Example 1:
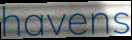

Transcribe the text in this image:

havens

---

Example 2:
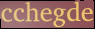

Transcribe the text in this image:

cchegde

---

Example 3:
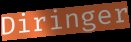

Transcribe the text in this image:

Diringer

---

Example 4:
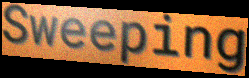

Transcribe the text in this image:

Sweeping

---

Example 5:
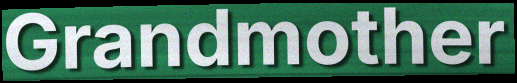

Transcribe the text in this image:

Grandmother